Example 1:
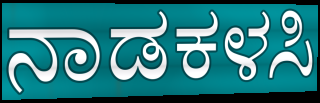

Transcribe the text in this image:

ನಾಡಕಳಸಿ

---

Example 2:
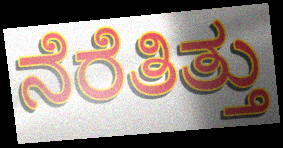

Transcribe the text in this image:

ನೆರೆತಿತ್ತು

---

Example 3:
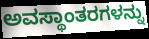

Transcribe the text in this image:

ಅವಸ್ಥಾಂತರಗಳನ್ನು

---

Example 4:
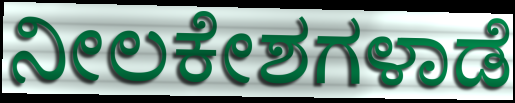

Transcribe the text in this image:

ನೀಲಕೇಶಗಳಾಡೆ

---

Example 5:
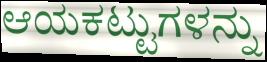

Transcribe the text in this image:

ಆಯಕಟ್ಟುಗಳನ್ನು